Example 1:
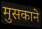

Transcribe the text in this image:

मुसकाने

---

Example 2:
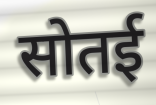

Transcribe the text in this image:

सोतई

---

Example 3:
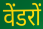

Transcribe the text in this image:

वेंडरों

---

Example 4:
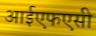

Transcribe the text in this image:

आईएफएसी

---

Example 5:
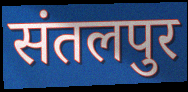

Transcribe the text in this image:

संतलपुर